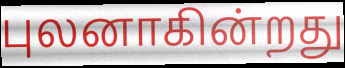
புலனாகின்றது